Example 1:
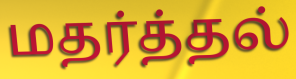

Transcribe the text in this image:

மதர்த்தல்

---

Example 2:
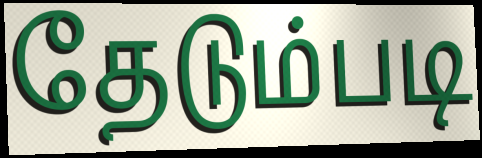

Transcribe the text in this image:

தேடும்படி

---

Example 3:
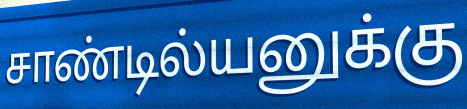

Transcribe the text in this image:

சாண்டில்யனுக்கு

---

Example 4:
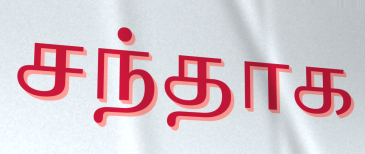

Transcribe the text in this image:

சந்தாக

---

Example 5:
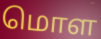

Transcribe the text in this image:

மொள